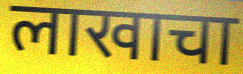
लाखाचा